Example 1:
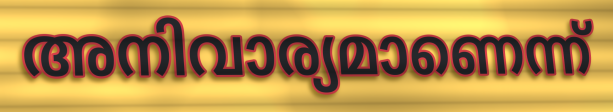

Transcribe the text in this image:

അനിവാര്യമാണെന്ന്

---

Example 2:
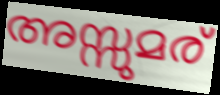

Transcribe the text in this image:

അസ്സുമര്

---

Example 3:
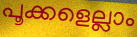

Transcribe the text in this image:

പൂക്കളെല്ലാം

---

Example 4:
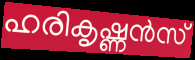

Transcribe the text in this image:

ഹരികൃഷ്ണൻസ്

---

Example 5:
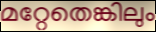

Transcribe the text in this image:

മറ്റേതെങ്കിലും